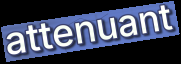
attenuant